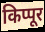
किप्पूर